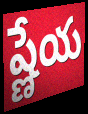
ష్ణేయ